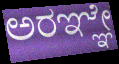
ಅರಞ್ಞೇ